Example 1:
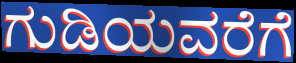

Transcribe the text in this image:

ಗುಡಿಯವರೆಗೆ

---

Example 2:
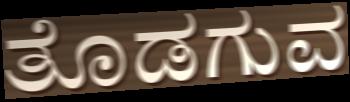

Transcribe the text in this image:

ತೊಡಗುವ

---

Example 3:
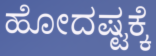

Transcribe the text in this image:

ಹೋದಷ್ಟಕ್ಕೆ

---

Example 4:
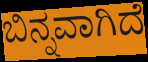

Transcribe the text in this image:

ಬಿನ್ನವಾಗಿದೆ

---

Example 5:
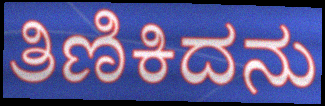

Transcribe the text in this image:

ತಿಣಿಕಿದನು